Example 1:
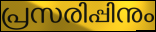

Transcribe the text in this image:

പ്രസരിപ്പിനും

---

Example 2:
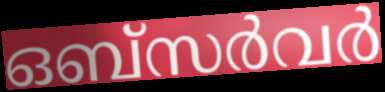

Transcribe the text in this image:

ഒബ്സർവർ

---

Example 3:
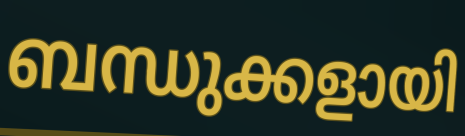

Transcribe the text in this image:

ബന്ധുക്കളായി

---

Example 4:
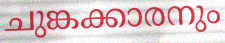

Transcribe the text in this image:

ചുങ്കക്കാരനും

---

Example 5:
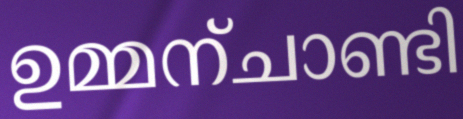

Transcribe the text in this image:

ഉമ്മന്ചാണ്ടി